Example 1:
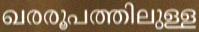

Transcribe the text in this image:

ഖരരൂപത്തിലുള്ള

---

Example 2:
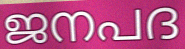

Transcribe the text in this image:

ജനപദ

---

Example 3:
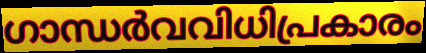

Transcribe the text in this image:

ഗാന്ധർവവിധിപ്രകാരം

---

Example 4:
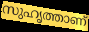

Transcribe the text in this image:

സുഹൃത്താണ്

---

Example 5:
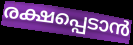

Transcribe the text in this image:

രക്ഷപ്പെടാൻ